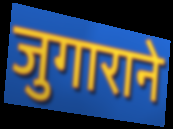
जुगाराने